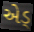
એડ્